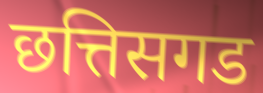
छत्तिसगड